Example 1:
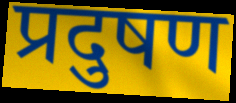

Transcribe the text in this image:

प्रदुषण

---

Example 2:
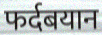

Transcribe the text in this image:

फर्दबयान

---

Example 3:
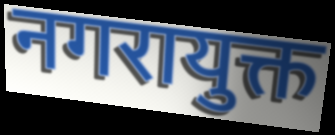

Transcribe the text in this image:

नगरायुक्त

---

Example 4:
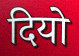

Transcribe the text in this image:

दियो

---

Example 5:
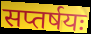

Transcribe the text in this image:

सप्तर्षयः